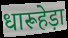
धारूहेड़ा